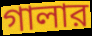
গালার